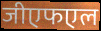
जीएफएल